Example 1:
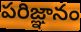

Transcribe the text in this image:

పరిజ్ఞానం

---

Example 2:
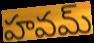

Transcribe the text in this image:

హవమ్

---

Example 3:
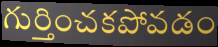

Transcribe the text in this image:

గుర్తించకపోవడం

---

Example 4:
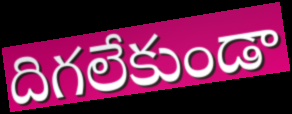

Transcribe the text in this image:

దిగలేకుండా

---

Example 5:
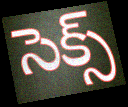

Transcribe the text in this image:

సెక్స్